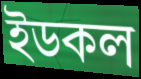
ইডকল